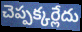
చెప్పక్కర్లేదు